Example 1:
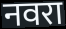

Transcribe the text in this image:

नवरा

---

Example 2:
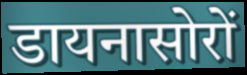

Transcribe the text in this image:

डायनासोरों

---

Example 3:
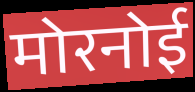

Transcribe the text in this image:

मोरनोई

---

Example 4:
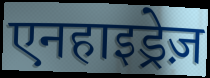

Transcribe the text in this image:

एनहाइड्रेज़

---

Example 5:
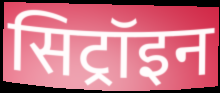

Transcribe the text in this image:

सिट्रॉइन